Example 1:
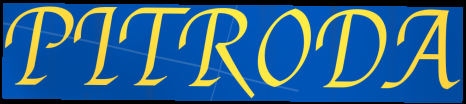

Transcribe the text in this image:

PITRODA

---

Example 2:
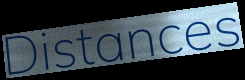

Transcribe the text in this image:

Distances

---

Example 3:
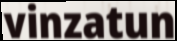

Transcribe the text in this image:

vinzatun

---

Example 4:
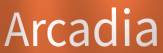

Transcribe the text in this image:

Arcadia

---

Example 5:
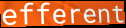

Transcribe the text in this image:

efferent